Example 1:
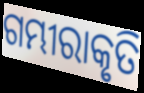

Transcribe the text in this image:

ଗମ୍ଭୀରାକୃତି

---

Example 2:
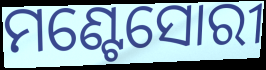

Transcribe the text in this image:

ମଣ୍ଟେସୋରୀ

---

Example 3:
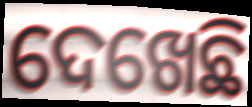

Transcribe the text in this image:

ଦେଖେଛି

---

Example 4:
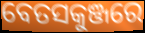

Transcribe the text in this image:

ବେତସକୁଞ୍ଜରେ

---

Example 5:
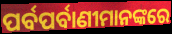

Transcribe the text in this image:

ପର୍ବପର୍ବାଣୀମାନଙ୍କରେ